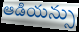
ఆడియన్సు